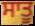
ਸਾਤੂ